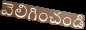
వెలిగించండి